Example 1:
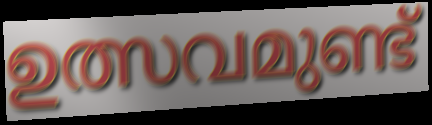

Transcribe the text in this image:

ഉത്സവമുണ്ട്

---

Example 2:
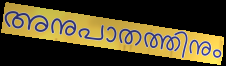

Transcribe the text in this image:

അനുപാതത്തിനും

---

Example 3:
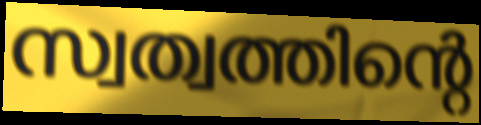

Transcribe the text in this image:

സ്വത്വത്തിന്റെ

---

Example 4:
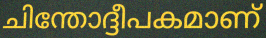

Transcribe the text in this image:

ചിന്തോദ്ദീപകമാണ്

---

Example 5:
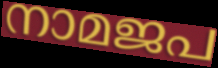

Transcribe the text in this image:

നാമജപ